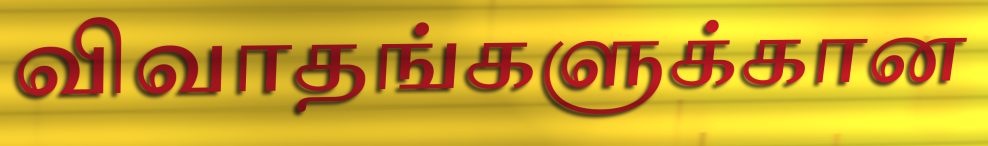
விவாதங்களுக்கான